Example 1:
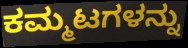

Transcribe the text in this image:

ಕಮ್ಮಟಗಳನ್ನು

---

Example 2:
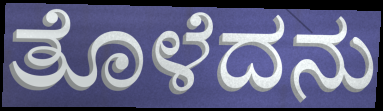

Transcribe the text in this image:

ತೊಳೆದನು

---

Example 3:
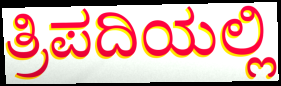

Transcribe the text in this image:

ತ್ರಿಪದಿಯಲ್ಲಿ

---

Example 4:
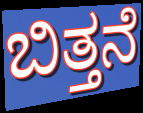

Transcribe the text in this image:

ಬಿತ್ತನೆ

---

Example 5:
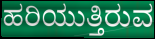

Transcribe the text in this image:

ಹರಿಯುತ್ತಿರುವ